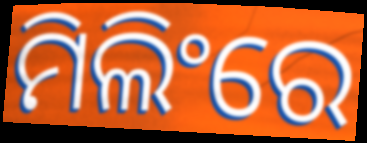
ମିଲିଂରେ